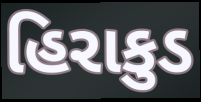
હિરાકુડ